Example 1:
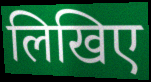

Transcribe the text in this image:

लिखिए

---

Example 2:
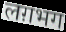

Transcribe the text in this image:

लग़भग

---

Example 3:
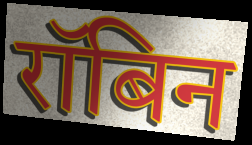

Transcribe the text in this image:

रॉबिन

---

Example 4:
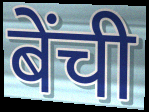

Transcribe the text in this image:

बेंची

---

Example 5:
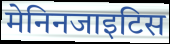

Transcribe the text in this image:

मेनिनजाइटिस